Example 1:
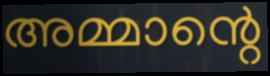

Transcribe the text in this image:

അമ്മാന്റെ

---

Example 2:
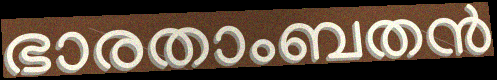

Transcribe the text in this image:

ഭാരതാംബതൻ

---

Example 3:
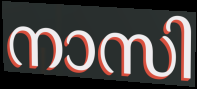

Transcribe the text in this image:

നാസി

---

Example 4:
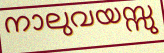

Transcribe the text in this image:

നാലുവയസ്സു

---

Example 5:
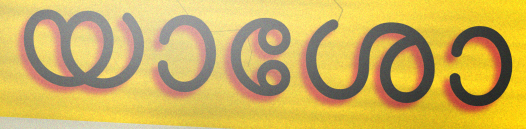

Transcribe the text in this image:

യാശോ